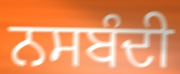
ਨਸਬੰਦੀ